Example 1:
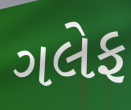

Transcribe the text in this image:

ગલેફ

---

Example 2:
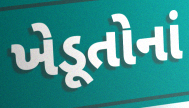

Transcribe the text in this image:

ખેડૂતોનાં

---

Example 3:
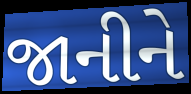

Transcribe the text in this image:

જાનીને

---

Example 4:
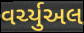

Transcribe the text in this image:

વર્ચ્યુઅલ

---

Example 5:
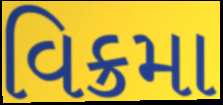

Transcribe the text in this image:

વિક્રમા